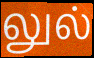
லுல்